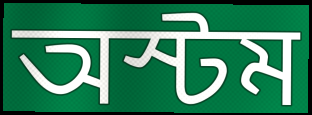
অস্টম